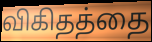
விகிதத்தை